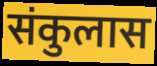
संकुलास